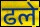
ढले